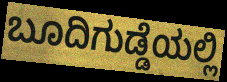
ಬೂದಿಗುಡ್ಡೆಯಲ್ಲಿ